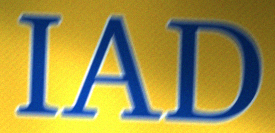
IAD